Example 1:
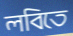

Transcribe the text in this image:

লবিতে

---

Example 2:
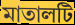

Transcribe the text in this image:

মাতালটি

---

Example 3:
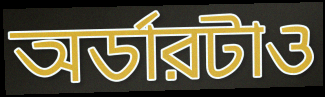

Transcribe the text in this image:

অর্ডারটাও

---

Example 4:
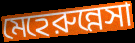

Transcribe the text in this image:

মেহেরুন্নেসা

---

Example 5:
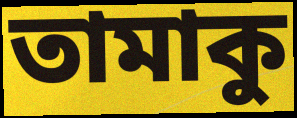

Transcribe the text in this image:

তামাকু